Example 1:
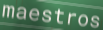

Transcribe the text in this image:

maestros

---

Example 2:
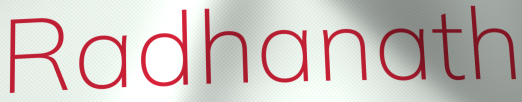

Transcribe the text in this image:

Radhanath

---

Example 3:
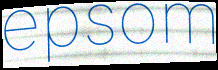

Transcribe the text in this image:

epsom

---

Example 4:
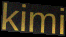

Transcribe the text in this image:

kimi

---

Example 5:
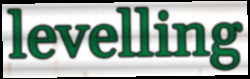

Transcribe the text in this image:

levelling